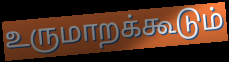
உருமாறக்கூடும்